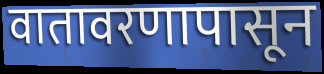
वातावरणापासून